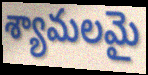
శ్యామలమై